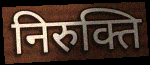
निरुक्ति